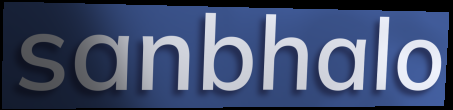
sanbhalo